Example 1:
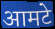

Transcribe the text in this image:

आमटे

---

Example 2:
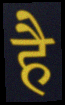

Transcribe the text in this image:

है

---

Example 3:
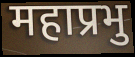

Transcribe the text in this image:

महाप्रभु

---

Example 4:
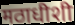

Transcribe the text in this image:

मठाधीशी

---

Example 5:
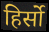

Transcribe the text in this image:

हिर्सो